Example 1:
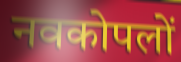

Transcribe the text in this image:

नवकोपलों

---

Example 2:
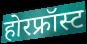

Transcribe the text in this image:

होरफ्रॉस्ट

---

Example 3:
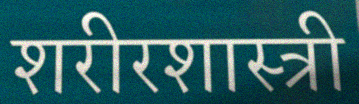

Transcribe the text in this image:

शरीरशास्त्री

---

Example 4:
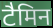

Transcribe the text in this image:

टैमिन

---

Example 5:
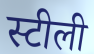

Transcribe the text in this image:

स्टीली